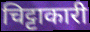
चिट्टाकारी